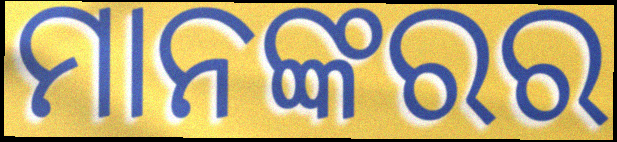
ମାନଙ୍କରର